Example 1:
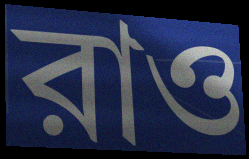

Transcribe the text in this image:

রাও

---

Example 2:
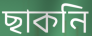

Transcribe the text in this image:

ছাকনি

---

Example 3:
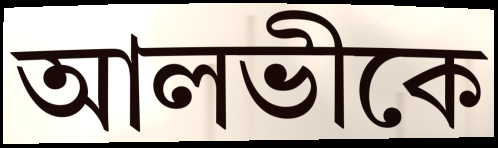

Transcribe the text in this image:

আলভীকে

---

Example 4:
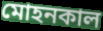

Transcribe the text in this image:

মোহনকাল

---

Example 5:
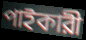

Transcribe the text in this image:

পাইকারী